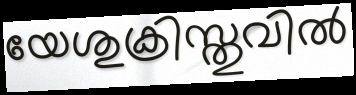
യേശുക്രിസ്തുവിൽ